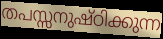
തപസ്സനുഷ്ഠിക്കുന്ന